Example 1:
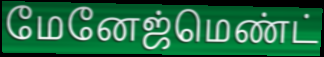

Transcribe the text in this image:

மேனேஜ்மெண்ட்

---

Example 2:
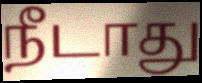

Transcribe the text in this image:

நீடாது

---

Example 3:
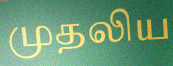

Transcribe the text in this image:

முதலிய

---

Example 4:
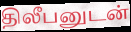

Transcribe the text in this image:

திலீபனுடன்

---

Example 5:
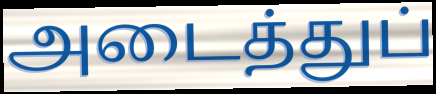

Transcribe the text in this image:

அடைத்துப்